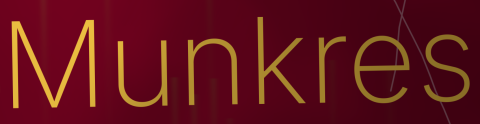
Munkres